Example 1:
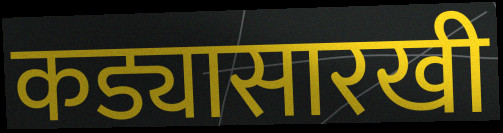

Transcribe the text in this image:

कड्यासारखी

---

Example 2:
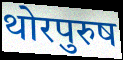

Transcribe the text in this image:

थोरपुरुष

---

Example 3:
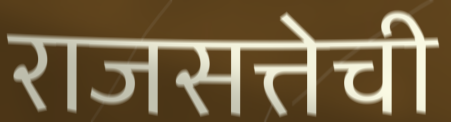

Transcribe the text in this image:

राजसत्तेची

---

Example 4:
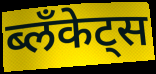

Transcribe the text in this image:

ब्लॅंकेट्स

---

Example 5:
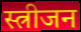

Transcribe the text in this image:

स्त्रीजन